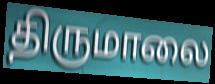
திருமாலை